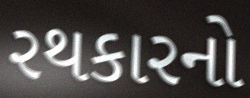
રથકારનો